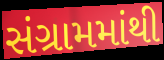
સંગ્રામમાંથી